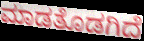
ಮಾಡತೊಡಗಿದೆ